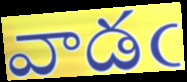
వాడఁ